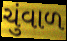
ચુંવાળ